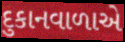
દુકાનવાળાએ